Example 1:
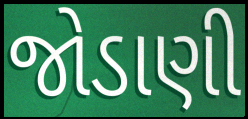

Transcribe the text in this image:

જોડાણી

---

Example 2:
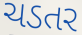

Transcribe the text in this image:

ચડતર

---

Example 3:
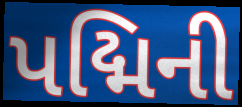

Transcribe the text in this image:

પદ્મિની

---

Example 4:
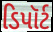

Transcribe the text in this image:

ડિપૉર્ટ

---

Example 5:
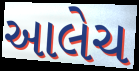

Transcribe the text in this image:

આલેચ